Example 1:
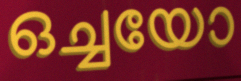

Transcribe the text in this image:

ഒച്ചയോ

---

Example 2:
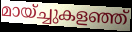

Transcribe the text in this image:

മായ്ച്ചുകളഞ്ഞ്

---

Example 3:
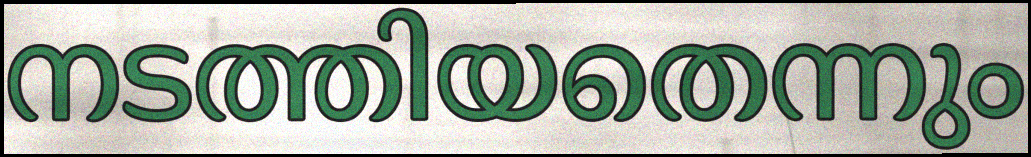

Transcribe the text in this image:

നടത്തിയതെന്നും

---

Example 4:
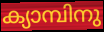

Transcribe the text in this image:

ക്യാമ്പിനു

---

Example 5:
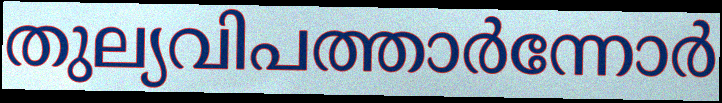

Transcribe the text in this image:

തുല്യവിപത്താർന്നോർ